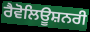
ਰੈਵੋਲਿਊਸ਼ਨਰੀ